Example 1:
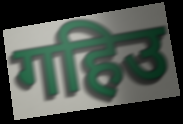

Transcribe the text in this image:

गहिउ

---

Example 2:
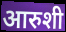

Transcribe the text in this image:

आरुशी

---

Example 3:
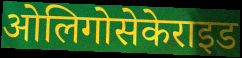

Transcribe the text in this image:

ओलिगोसेकेराइड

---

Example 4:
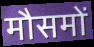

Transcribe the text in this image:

मौसमों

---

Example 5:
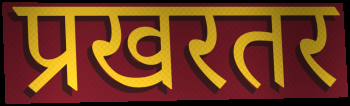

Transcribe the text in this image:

प्रखरतर